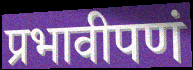
प्रभावीपणं